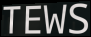
TEWS